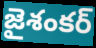
జైశంకర్